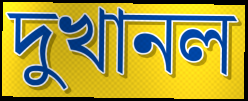
দুখানল